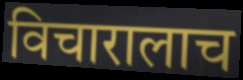
विचारालाच